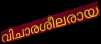
വിചാരശീലരായ